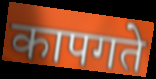
कापगते